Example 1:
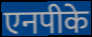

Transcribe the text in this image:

एनपीके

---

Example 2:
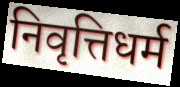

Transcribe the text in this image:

निवृत्तिधर्म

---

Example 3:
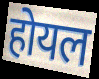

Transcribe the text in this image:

होयल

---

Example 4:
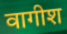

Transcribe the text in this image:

वागीश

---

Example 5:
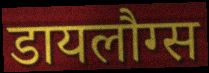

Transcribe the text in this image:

डायलौग्स